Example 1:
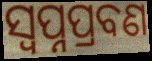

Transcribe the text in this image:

ସ୍ଵପ୍ନପ୍ରବଣ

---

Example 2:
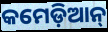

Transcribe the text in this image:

କମେଡ଼ିଆନ୍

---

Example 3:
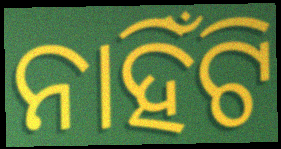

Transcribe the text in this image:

ନାହିଁଟି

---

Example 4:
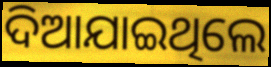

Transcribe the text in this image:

ଦିଆଯାଇଥିଲେ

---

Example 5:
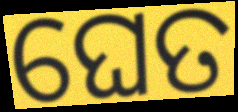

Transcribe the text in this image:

ଘେତ